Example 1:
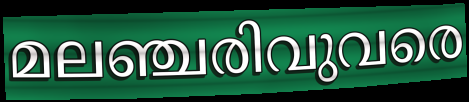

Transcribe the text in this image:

മലഞ്ചരിവുവരെ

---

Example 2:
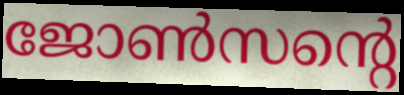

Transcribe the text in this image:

ജോൺസന്റെ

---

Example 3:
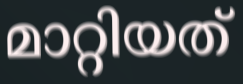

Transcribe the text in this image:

മാറ്റിയത്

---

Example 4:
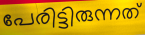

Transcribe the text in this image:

പേരിട്ടിരുന്നത്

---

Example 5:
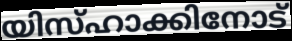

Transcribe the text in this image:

യിസ്ഹാക്കിനോട്